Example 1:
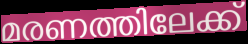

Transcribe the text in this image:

മരണത്തിലേക്ക്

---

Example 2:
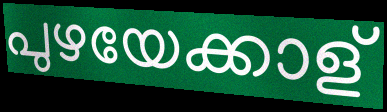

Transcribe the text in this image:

പുഴയേക്കാള്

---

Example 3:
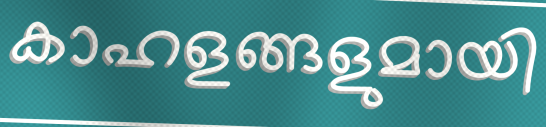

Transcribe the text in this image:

കാഹളങ്ങളുമായി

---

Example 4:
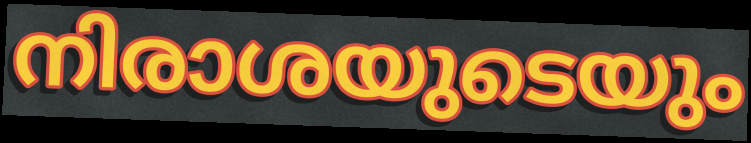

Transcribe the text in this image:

നിരാശയുടെയും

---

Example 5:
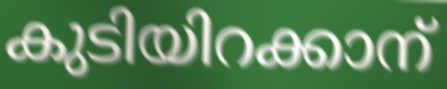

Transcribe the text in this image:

കുടിയിറക്കാന്